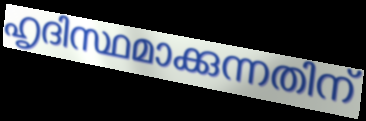
ഹൃദിസ്ഥമാക്കുന്നതിന്